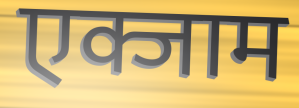
एक्जाम